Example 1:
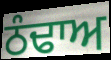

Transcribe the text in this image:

ਠੰਢਾਅ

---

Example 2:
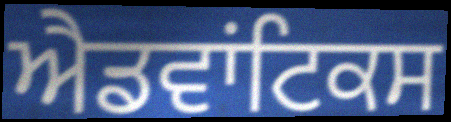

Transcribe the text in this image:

ਐਡਵਾਂਟਿਕਸ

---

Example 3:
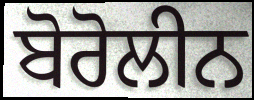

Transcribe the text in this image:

ਬੋਰੋਲੀਨ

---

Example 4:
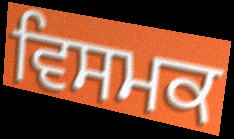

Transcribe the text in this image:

ਵਿਸਮਕ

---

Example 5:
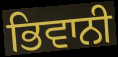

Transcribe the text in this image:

ਭਿਵਾਨੀ